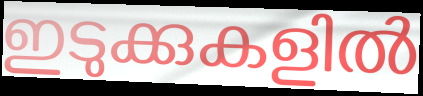
ഇടുക്കുകളിൽ